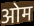
ओम